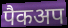
पैकअप